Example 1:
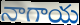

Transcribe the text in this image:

నాగాయ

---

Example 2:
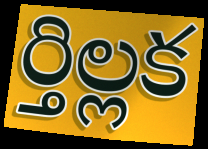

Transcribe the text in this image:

ర్తిల్లక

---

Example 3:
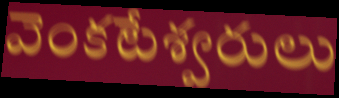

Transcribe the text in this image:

వెంకటేశ్వరులు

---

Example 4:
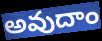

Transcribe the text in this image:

అవుదాం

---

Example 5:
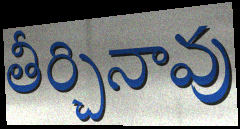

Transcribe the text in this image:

తీర్చినావు